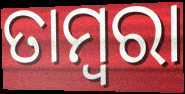
ତାମ୍ବରା